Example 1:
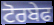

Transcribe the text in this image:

ਟੋਰਬੇਫ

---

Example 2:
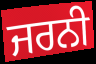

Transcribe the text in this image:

ਜਰਨੀ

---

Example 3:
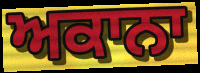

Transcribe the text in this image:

ਅਕਾਨਾ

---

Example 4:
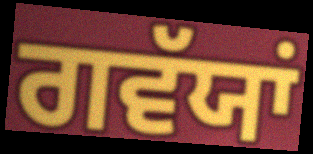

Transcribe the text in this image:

ਗਵੱਯਾਂ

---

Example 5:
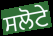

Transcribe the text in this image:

ਸਲੋਟੇ